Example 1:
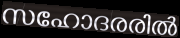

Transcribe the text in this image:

സഹോദരരിൽ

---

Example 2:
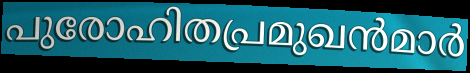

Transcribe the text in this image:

പുരോഹിതപ്രമുഖൻമാർ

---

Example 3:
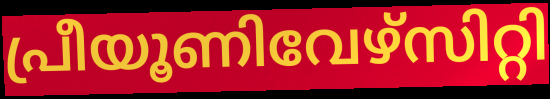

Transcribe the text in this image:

പ്രീയൂണിവേഴ്സിറ്റി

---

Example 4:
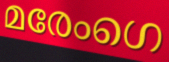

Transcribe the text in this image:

മരേംഗെ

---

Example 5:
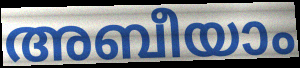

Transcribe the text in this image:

അബീയാം